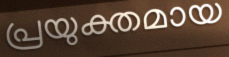
പ്രയുക്തമായ